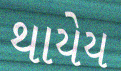
થાયેય